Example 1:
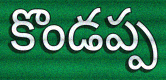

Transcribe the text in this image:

కొండప్ప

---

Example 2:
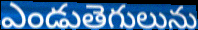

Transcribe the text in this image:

ఎండుతెగులును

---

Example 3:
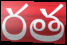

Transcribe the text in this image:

రత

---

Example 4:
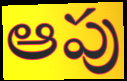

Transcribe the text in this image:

ఆపు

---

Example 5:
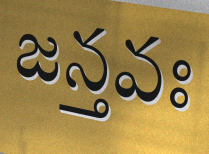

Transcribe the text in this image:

జన్తవః